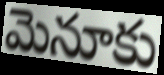
మెనూకు